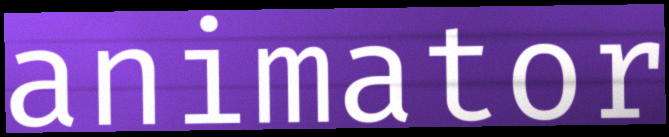
animator